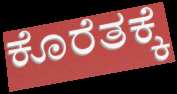
ಕೊರೆತಕ್ಕೆ